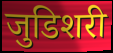
जुडिशरी